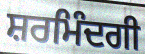
ਸ਼ਰਮਿੰਦਗੀ